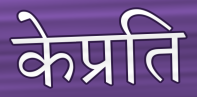
केप्रति